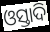
ଓସ୍ତାଦି